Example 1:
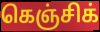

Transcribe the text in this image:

கெஞ்சிக்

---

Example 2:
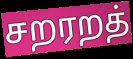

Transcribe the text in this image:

சறரறத்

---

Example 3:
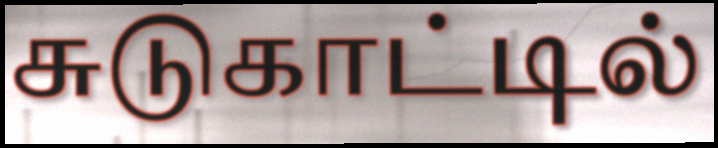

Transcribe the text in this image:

சுடுகாட்டில்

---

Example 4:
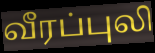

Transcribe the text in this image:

வீரப்புலி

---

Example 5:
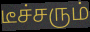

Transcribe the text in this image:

டீச்சரும்